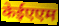
केईएएम